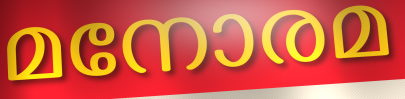
മനോരമ